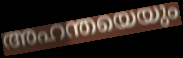
അഹന്തയെയും